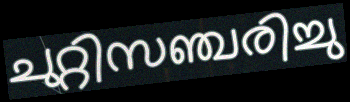
ചുറ്റിസഞ്ചരിച്ചു